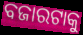
ବଜାରଟାକୁ